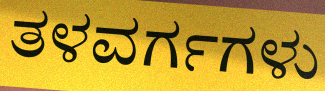
ತಳವರ್ಗಗಳು